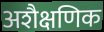
अशैक्षणिक